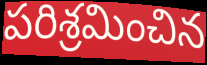
పరిశ్రమించిన